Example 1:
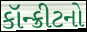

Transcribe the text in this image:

કૉન્ક્રીટનો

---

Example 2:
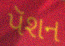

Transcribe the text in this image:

પૅશન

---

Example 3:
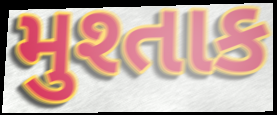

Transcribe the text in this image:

મુશ્તાક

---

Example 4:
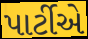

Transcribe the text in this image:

પાર્ટીએ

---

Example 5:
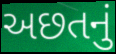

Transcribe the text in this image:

અછતનું